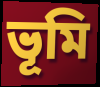
ভূমি